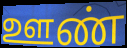
ஊண்